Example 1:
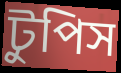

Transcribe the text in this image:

টুপিস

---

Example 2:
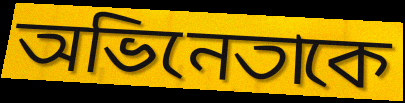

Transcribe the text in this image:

অভিনেতাকে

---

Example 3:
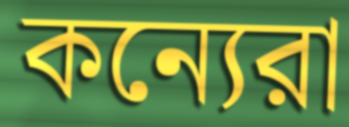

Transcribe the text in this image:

কন্যেরা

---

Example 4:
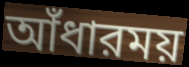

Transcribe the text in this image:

আঁধারময়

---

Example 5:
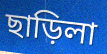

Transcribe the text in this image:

ছাড়িলা